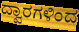
ದ್ವಾರಗಳಿಂದ